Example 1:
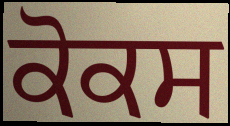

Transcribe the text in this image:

ਕੋਕਸ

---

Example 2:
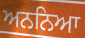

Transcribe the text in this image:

ਅਨਨਿਆ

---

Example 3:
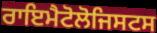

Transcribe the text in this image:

ਰਾਇਮੈਟੋਲੋਜਿਸਟਸ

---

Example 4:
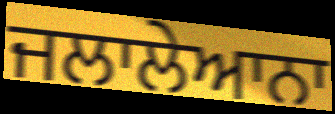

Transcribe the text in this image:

ਜਲਾਲੇਆਨਾ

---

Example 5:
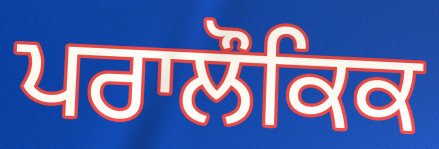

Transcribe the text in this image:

ਪਰਾਲੌਕਿਕ